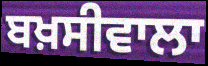
ਬਖ਼ਸੀਵਾਲਾ